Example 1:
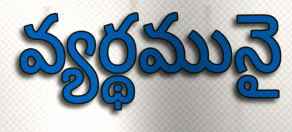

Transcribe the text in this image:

వ్యర్థమునై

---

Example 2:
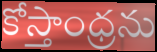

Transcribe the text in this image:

కోస్తాంధ్రను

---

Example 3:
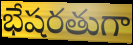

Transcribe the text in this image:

భేషరతుగా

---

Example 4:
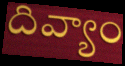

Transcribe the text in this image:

దివ్యాం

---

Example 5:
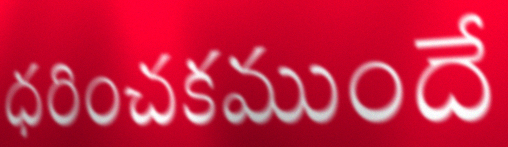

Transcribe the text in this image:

ధరించకముందే